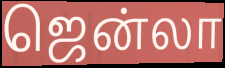
ஜென்லா